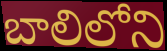
బాలిలోని